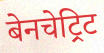
बेनचेट्रिट